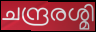
ചന്ദ്രരശ്മി